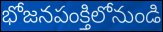
భోజనపంక్తిలోనుండి